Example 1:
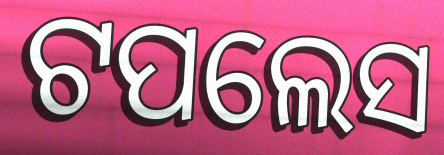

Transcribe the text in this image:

ଟପଲେସ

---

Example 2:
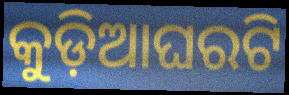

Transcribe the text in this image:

କୁଡ଼ିଆଘରଟି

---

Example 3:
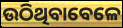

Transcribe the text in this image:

ଉଠିଥିବାବେଳେ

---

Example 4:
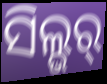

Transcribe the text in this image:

ସିଲ୍ଭର୍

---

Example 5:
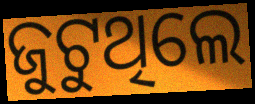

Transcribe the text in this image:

ଜୁଟୁଥିଲେ